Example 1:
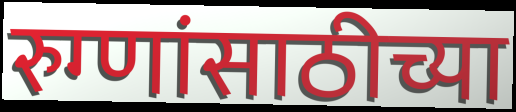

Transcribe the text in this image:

रुग्णांसाठीच्या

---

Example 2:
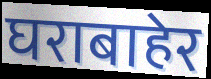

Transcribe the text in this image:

घराबाहेर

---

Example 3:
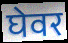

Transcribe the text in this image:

घेवर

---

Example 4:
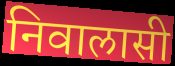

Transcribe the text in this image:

निवालासी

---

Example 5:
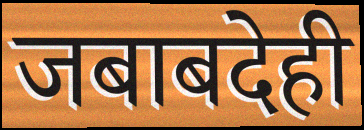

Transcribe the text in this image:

जबाबदेही